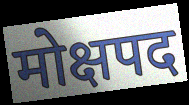
मोक्षपद